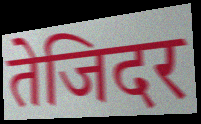
तेजिदर